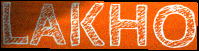
LAKHO